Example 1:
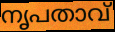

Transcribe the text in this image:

നൃപതാവ്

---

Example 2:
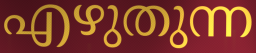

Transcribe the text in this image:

എഴുതുന്ന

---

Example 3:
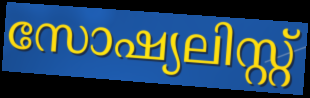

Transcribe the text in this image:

സോഷ്യലിസ്റ്റ്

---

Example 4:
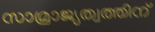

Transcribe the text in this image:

സാമ്രാജ്യത്വത്തിന്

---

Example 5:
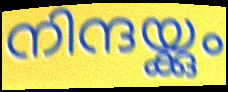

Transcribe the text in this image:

നിന്ദയ്ക്കും